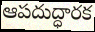
ఆపదుద్ధారక